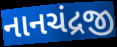
નાનચંદ્રજી